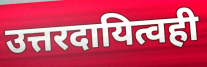
उत्तरदायित्वही